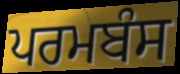
ਪਰਮਬੰਸ